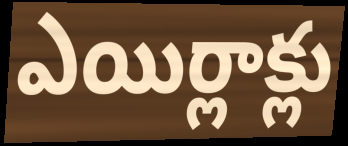
ఎయిర్లాక్లు